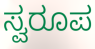
ಸ್ವರೂಪ